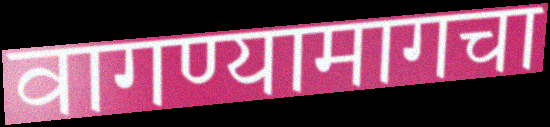
वागण्यामागचा